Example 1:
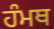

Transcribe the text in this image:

ਹੰਮਥ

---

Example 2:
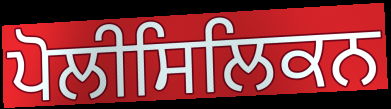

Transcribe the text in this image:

ਪੋਲੀਸਿਲਿਕਨ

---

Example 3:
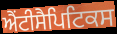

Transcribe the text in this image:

ਐਂਟੀਸੈਪਿਟਿਕਸ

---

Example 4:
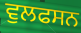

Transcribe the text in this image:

ਵੁਲਫਸਨ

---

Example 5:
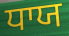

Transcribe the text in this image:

ਧਾਯ